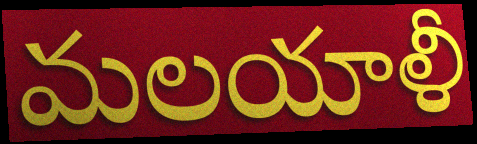
మలయాళీ